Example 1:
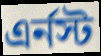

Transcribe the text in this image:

এর্নস্ট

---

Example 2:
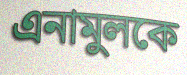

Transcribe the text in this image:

এনামুলকে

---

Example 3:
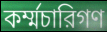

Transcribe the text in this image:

কর্ম্মচারিগণ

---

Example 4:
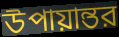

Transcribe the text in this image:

উপায়ান্তর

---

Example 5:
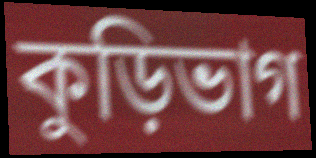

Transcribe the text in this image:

কুড়িভাগ